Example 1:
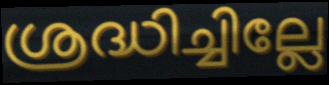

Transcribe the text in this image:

ശ്രദ്ധിച്ചില്ലേ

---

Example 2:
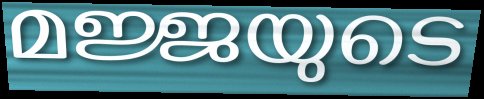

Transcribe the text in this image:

മജ്ജയുടെ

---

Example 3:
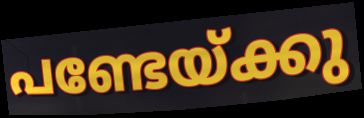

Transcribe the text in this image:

പണ്ടേയ്ക്കു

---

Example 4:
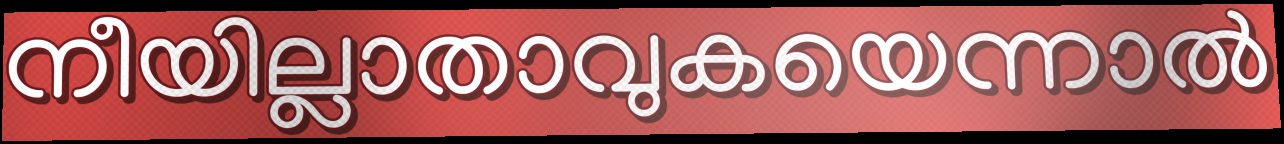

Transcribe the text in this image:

നീയില്ലാതാവുകയെന്നാൽ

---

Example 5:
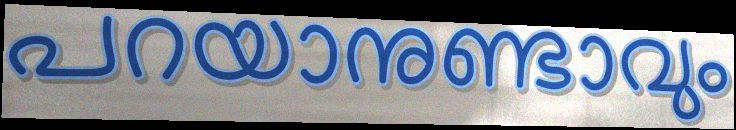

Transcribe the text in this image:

പറയാനുണ്ടാവും